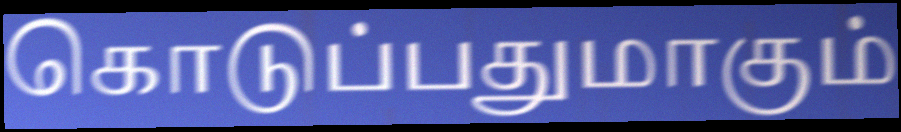
கொடுப்பதுமாகும்